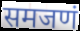
समजणं